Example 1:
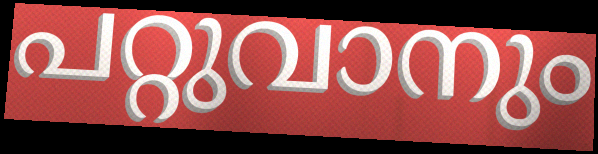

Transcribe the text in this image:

പറ്റുവാനും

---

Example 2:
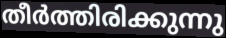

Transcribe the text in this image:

തീർത്തിരിക്കുന്നു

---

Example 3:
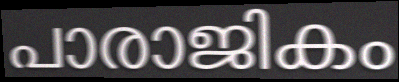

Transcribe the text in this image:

പാരാജികം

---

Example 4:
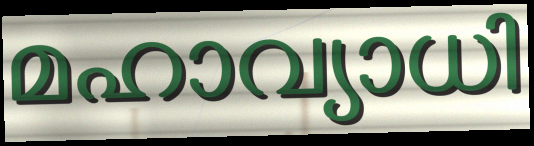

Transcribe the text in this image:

മഹാവ്യാധി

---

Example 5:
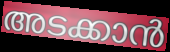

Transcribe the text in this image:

അടക്കാൻ